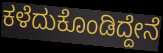
ಕಳೆದುಕೊಂಡಿದ್ದೇನೆ